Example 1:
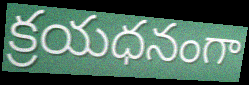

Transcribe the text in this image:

క్రయధనంగా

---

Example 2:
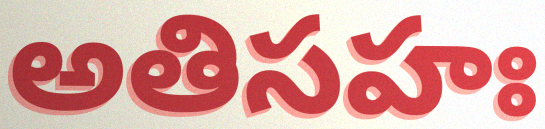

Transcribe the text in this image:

అతిసహః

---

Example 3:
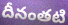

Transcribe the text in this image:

దీనంతటి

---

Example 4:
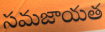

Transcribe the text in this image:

సమజాయత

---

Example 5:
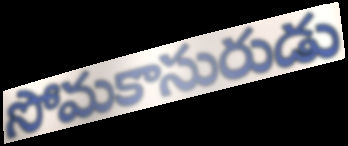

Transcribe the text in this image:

సోమకాసురుడు